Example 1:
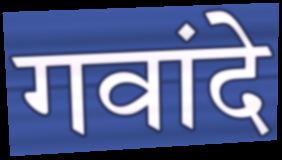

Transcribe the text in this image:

गवांदे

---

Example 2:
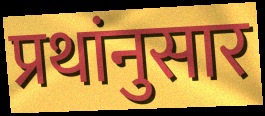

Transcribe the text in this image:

प्रथांनुसार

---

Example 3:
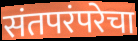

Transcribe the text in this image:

संतपरंपरेचा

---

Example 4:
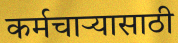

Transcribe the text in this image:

कर्मचाऱ्यासाठी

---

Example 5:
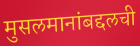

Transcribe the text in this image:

मुसलमानांबद्दलची